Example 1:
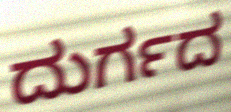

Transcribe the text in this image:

ದುರ್ಗದ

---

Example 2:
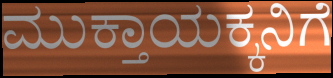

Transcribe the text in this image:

ಮುಕ್ತಾಯಕ್ಕನಿಗೆ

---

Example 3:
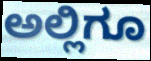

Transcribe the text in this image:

ಅಲ್ಲಿಗೂ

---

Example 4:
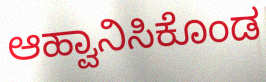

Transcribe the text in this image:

ಆಹ್ವಾನಿಸಿಕೊಂಡ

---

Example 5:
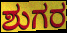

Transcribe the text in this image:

ಶುಗರ